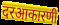
दरआकारणी